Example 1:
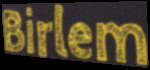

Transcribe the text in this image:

Birlem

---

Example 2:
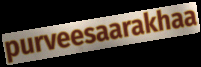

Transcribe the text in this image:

purveesaarakhaa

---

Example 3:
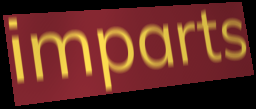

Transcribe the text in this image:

imparts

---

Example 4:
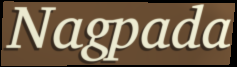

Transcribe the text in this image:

Nagpada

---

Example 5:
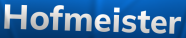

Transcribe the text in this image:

Hofmeister